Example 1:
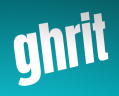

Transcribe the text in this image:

ghrit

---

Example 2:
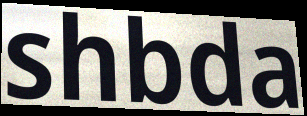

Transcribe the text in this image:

shbda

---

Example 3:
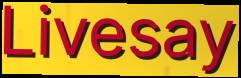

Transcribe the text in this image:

Livesay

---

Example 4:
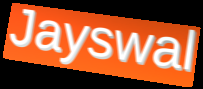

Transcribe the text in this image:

Jayswal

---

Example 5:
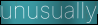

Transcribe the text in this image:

unusually